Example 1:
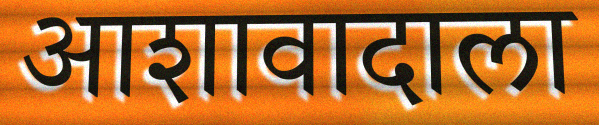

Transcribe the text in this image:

आशावादाला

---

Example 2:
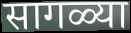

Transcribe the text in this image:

सागळ्या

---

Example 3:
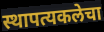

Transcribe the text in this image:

स्थापत्यकलेचा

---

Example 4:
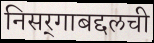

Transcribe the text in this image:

निसर्गाबद्दलची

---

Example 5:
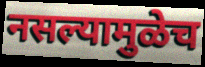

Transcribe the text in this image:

नसल्यामुळेच